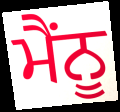
ਮੈਂਨੂ